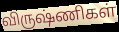
விருஷ்ணிகள்